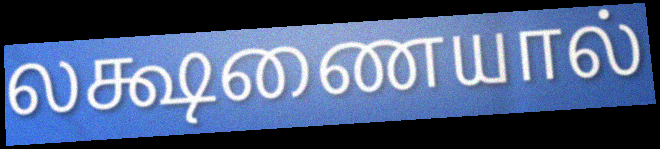
லக்ஷணையால்